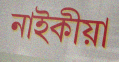
নাইকীয়া